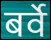
बर्वे